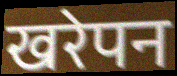
खरेपन